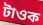
টাওক